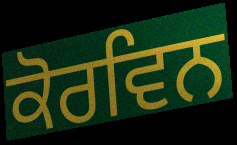
ਕੋਰਵਿਨ